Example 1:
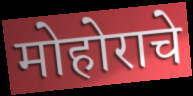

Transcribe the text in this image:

मोहोराचे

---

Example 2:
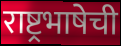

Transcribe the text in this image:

राष्ट्रभाषेची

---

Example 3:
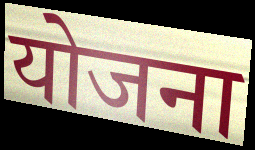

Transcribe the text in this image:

योजना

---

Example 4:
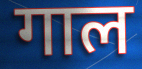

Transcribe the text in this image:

गाल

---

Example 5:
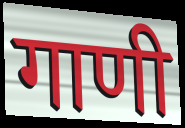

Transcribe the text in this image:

गाणी